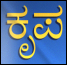
ಕೃಪ